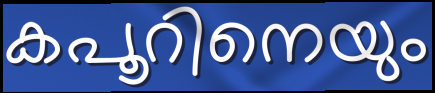
കപൂറിനെയും